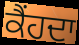
ਕੈਂਹਦਾ